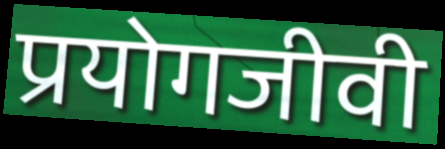
प्रयोगजीवी